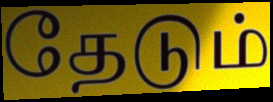
தேடும்